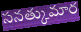
సనత్కుమార